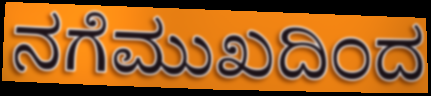
ನಗೆಮುಖದಿಂದ